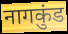
नागकुंड